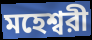
মহেশ্বরী